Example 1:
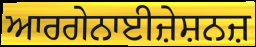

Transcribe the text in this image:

ਆਰਗੇਨਾਈਜ਼ੇਸ਼ਨਜ਼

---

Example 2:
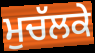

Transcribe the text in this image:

ਮੁਚੱਲਕੇ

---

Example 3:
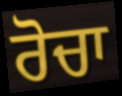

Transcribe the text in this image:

ਰੋਚਾ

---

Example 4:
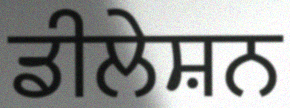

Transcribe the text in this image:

ਡੀਲੇਸ਼ਨ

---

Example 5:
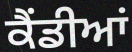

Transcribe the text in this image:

ਕੈਂਡੀਆਂ